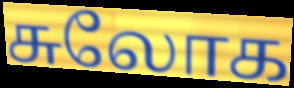
சுலோக